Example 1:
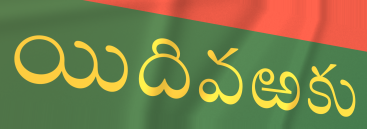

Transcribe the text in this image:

యిదివఱకు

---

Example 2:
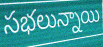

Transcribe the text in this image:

సభలున్నాయి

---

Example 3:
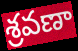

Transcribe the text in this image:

శ్రవణా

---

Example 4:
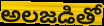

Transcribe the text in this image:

అలజడితో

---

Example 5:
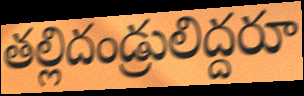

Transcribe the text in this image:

తల్లిదండ్రులిద్దరూ